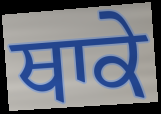
ਥਾਕੇ